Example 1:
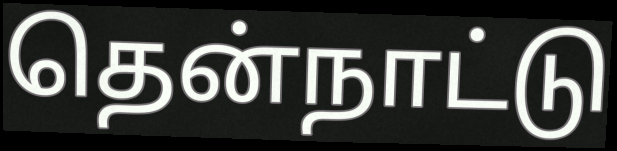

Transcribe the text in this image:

தென்நாட்டு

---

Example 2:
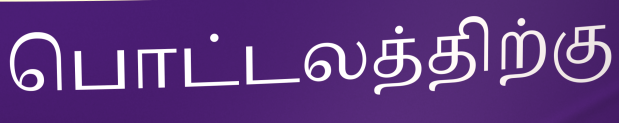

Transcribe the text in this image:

பொட்டலத்திற்கு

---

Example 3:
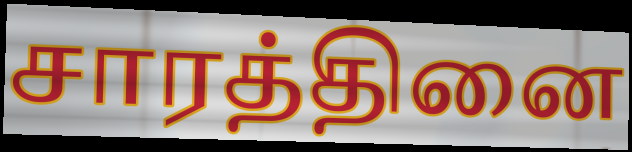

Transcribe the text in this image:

சாரத்தினை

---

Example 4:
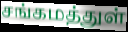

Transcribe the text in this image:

சங்கமத்துள்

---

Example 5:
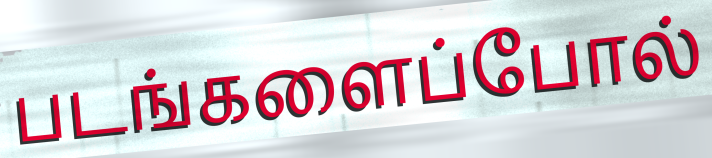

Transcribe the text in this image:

படங்களைப்போல்